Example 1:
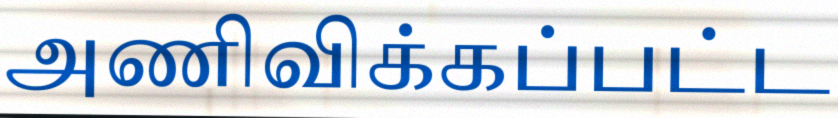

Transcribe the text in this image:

அணிவிக்கப்பட்ட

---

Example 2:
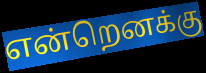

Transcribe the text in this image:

என்றெனக்கு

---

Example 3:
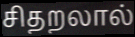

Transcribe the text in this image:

சிதறலால்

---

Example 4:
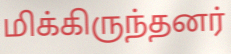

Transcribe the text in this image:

மிக்கிருந்தனர்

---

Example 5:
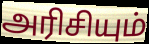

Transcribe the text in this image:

அரிசியும்